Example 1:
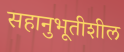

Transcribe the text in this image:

सहानुभूतीशील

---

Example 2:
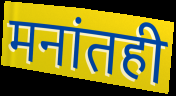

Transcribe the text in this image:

मनांतही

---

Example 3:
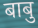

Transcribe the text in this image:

बाबु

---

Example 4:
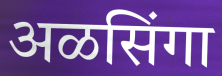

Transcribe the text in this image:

अळसिंगा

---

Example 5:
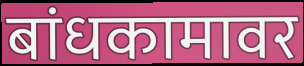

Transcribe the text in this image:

बांधकामावर